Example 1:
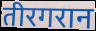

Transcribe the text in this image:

तीरगरान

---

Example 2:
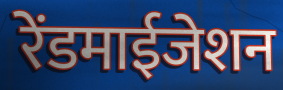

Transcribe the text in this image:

रेंडमाईजेशन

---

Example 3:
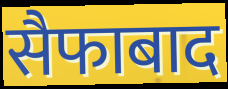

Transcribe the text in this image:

सैफाबाद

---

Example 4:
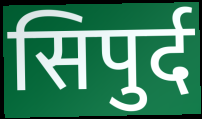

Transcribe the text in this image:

सिपुर्द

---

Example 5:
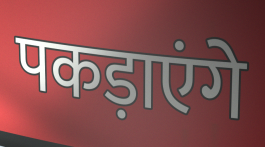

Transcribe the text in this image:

पकड़ाएंगे